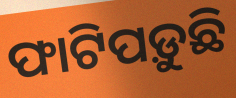
ଫାଟିପଡ଼ୁଛି